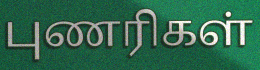
புணரிகள்